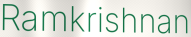
Ramkrishnan